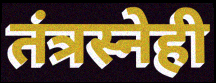
तंत्रस्नेही